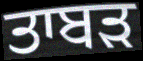
ਤਾਬੜ